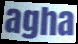
agha